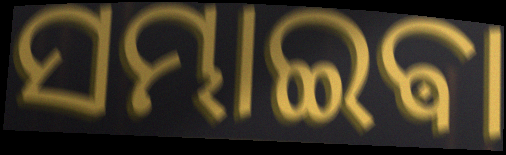
ସମ୍ଭାଇଵା